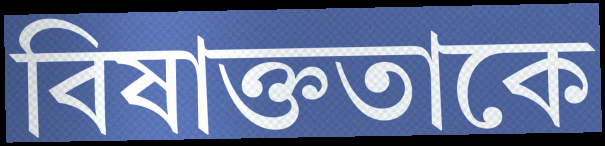
বিষাক্ততাকে